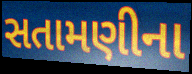
સતામણીના